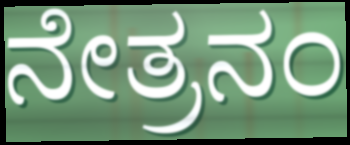
ನೇತ್ರನಂ